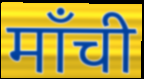
माँची